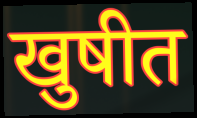
खुषीत